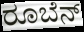
ರೂಬೆನ್